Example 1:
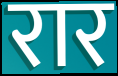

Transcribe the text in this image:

रार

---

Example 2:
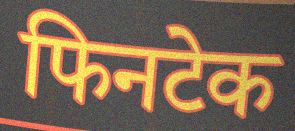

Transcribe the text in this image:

फिनटेक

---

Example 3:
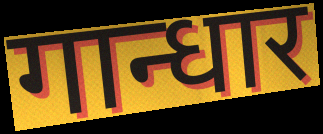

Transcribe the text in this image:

गान्धार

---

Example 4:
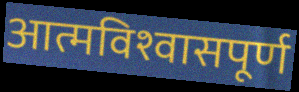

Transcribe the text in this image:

आत्मविश्वासपूर्ण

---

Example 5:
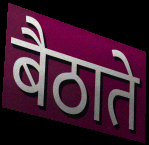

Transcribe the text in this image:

बैठाते